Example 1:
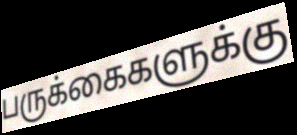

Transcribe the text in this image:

பருக்கைகளுக்கு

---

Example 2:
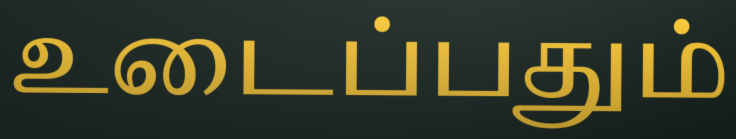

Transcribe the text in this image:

உடைப்பதும்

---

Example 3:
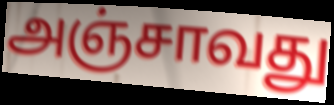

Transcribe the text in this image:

அஞ்சாவது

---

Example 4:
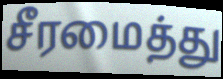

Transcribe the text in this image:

சீரமைத்து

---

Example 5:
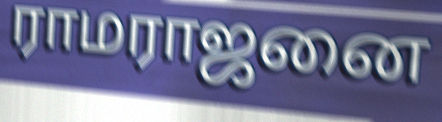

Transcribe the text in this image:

ராமராஜனை